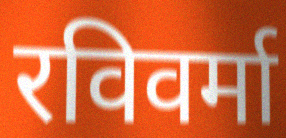
रविवर्मा